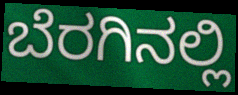
ಬೆರಗಿನಲ್ಲಿ